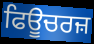
ਫਿਊਚਰਜ਼